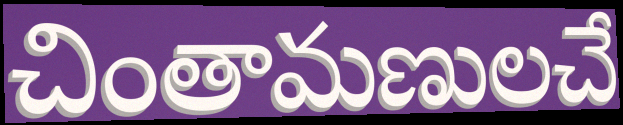
చింతామణులచే